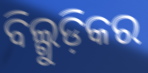
ବିଲ୍ଗୁଡ଼ିକର